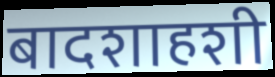
बादशाहशी